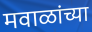
मवाळांच्या